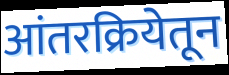
आंतरक्रियेतून